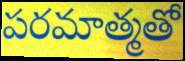
పరమాత్మతో